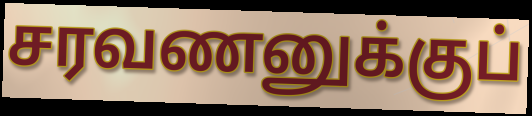
சரவணனுக்குப்